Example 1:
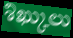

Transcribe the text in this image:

శిఖ్కులు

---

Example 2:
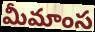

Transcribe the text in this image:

మీమాంస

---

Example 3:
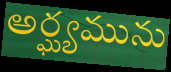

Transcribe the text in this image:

అర్ఘ్యమును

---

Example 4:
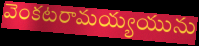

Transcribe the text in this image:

వెంకటరామయ్యయును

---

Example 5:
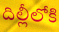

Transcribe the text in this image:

దిల్లీలోకి